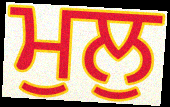
ਮੁਲੁ